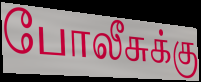
போலீசுக்கு